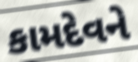
કામદેવને